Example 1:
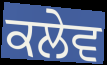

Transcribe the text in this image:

ਕਲੇਵ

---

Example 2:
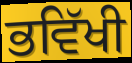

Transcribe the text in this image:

ਭਵਿੱਖੀ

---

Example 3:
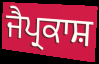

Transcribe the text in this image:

ਜੈਪ੍ਰਕਾਸ਼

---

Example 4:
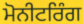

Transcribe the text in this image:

ਮੋਨੀਟਰਿੰਗ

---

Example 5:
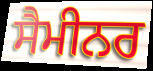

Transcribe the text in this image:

ਸੈਮੀਨਰ